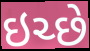
ઇચ્છે